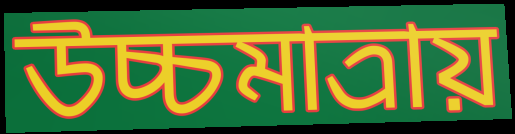
উচ্চমাত্রায়